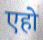
एहो